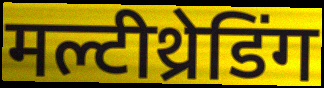
मल्टीथ्रेडिंग